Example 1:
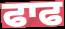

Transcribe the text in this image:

ਫਾਫ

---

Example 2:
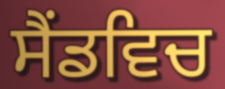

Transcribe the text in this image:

ਸੈਂਡਵਿਚ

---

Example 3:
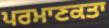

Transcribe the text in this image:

ਪਰਮਾਣਕਤਾ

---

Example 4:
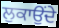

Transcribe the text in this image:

ਲੁਕਾਉਂਦੇ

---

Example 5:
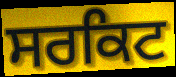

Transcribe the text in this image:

ਸਰਕਿਟ